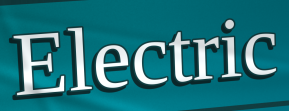
Electric